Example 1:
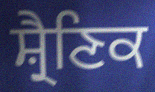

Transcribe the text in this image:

ਸ਼੍ਰੈਣਿਕ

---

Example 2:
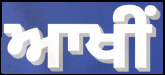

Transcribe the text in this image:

ਆਖੀਂ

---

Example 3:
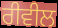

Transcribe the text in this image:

ਰੀਵੀਲ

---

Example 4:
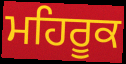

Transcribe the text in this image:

ਮਹਿਰੂਕ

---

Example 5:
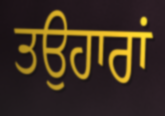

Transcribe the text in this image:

ਤਉਹਾਰਾਂ